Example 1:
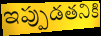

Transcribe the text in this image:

ఇప్పుడతనికి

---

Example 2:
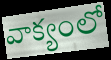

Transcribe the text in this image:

వాక్యంలో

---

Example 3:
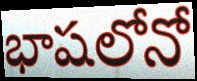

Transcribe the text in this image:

భాషలోనో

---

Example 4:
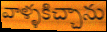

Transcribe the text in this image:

వాళ్ళకిచ్చాను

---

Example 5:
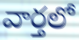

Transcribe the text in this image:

వార్తలో